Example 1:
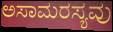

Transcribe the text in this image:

ಅಸಾಮರಸ್ಯವು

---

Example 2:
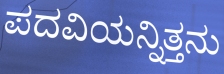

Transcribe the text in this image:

ಪದವಿಯನ್ನಿತ್ತನು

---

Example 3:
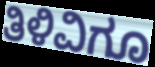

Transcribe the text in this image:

ತಿಳಿವಿಗೂ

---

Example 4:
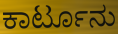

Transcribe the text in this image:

ಕಾರ್ಟೂನು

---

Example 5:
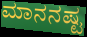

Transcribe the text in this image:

ಮಾನನಷ್ಟ